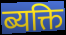
ब्यक्ति